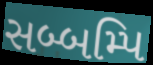
સબ્બમ્પિ